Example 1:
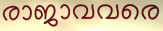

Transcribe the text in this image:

രാജാവവരെ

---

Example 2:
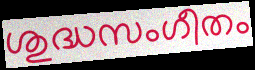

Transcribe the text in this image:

ശുദ്ധസംഗീതം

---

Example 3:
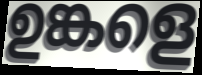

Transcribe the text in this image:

ഉങ്കളെ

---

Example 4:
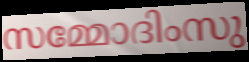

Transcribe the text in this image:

സമ്മോദിംസു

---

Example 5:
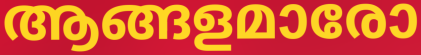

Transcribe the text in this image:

ആങ്ങളമാരോ